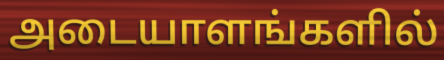
அடையாளங்களில்